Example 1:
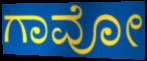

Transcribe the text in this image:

ಗಾವೋ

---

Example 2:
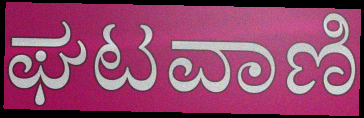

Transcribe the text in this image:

ಘಟವಾಣಿ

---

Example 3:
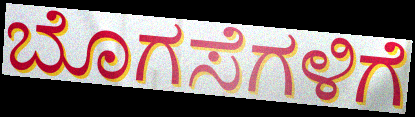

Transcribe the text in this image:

ಬೊಗಸೆಗಳಿಗೆ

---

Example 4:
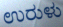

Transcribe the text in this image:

ಉರುಳು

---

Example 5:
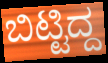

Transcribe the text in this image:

ಬಿಟ್ಟಿದ್ದ